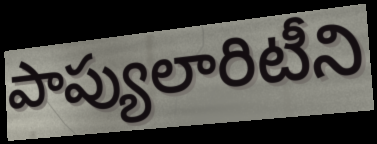
పాప్యులారిటీని